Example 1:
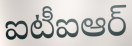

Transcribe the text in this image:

ఐటీఐఆర్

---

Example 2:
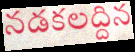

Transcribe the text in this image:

నడకలద్దిన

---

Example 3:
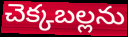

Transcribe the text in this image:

చెక్కబల్లను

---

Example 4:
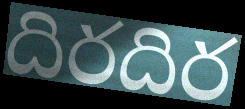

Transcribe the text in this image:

దిరదిర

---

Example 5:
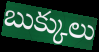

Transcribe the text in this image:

బుక్కులు